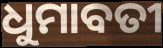
ଧୁମାବତୀ